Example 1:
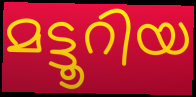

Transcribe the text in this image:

മട്ടൂറിയ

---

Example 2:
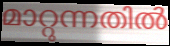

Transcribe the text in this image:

മാറ്റുന്നതിൽ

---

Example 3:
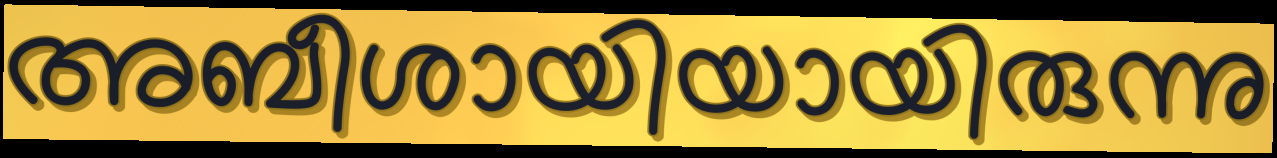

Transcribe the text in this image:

അബീശായിയായിരുന്നു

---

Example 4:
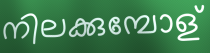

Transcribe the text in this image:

നിലക്കുമ്പോള്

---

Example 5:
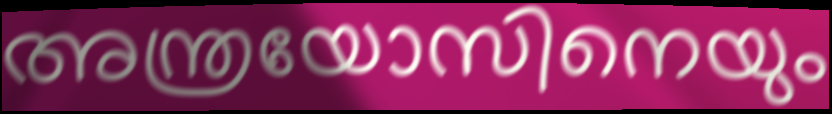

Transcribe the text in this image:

അന്ത്രയോസിനെയും